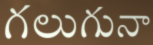
గలుగునా